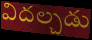
విదల్చడు